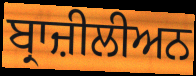
ਬ੍ਰਾਜ਼ੀਲੀਅਨ